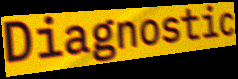
Diagnostic